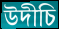
উদীচি